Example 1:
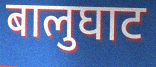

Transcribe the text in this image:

बालुघाट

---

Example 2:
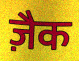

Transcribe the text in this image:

ज़ैक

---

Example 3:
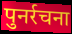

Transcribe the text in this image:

पुनर्रचना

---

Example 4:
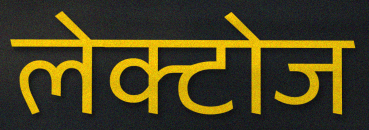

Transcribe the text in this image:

लेक्टोज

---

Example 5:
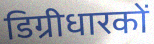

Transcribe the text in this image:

डिग्रीधारकों